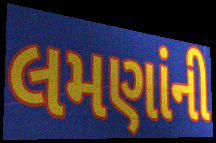
લમણાંની